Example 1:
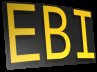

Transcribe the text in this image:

EBI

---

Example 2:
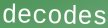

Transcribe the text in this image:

decodes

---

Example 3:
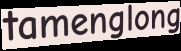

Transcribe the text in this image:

tamenglong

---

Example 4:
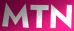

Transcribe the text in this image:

MTN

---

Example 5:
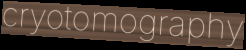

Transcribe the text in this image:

cryotomography